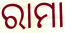
ରାମା